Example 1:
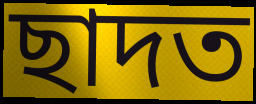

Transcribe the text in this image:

ছাদত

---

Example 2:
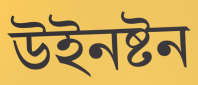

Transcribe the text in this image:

উইনষ্টন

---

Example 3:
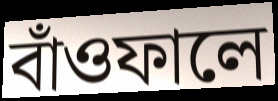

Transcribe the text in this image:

বাঁওফালে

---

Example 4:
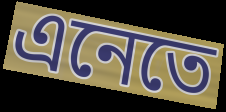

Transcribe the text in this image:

এনেতে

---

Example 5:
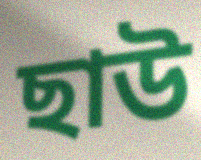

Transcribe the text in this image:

ছাউ